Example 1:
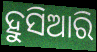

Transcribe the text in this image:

ହୁସିଆରି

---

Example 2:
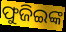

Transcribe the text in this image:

ଫୁଜିଇଙ୍କ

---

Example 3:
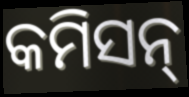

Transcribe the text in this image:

କମିସନ୍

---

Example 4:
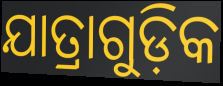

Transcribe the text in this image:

ଯାତ୍ରାଗୁଡ଼ିକ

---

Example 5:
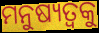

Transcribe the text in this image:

ମନୁଷ୍ୟତ୍ୱକୁ